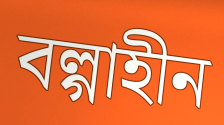
বল্গাহীন